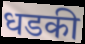
धडकी